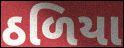
ઠળિયા